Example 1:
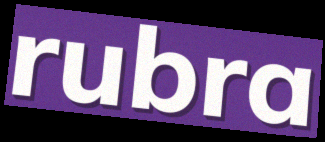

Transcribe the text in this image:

rubra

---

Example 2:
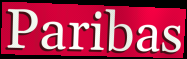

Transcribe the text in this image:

Paribas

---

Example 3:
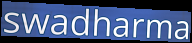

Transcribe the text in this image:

swadharma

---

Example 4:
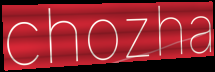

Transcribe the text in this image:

chozha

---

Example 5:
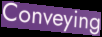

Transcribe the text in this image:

Conveying